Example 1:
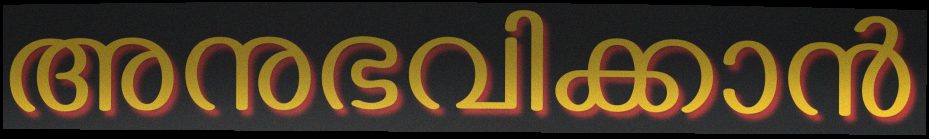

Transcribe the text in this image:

അനുഭവിക്കാൻ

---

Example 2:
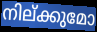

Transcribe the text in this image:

നില്ക്കുമോ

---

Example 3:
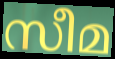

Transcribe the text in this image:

സീമ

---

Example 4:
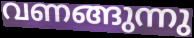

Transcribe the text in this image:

വണങ്ങുന്നു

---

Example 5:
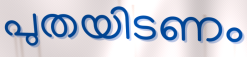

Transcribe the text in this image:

പുതയിടണം